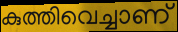
കുത്തിവെച്ചാണ്